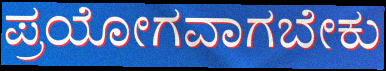
ಪ್ರಯೋಗವಾಗಬೇಕು